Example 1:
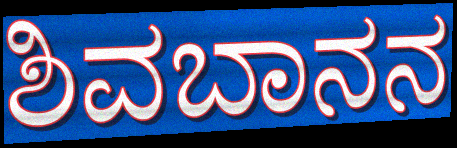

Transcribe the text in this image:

ಶಿವಬಾನನ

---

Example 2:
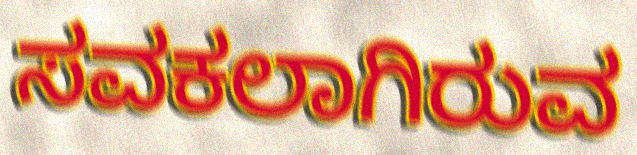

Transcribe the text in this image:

ಸವಕಲಾಗಿರುವ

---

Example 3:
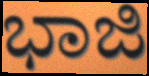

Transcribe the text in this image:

ಭಾಜಿ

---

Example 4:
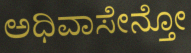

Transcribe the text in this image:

ಅಧಿವಾಸೇನ್ತೋ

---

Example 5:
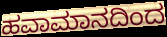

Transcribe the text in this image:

ಹವಾಮಾನದಿಂದ